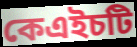
কেএইচটি